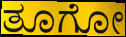
ತೂಗೋ